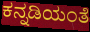
ಕನ್ನಡಿಯಂತೆ